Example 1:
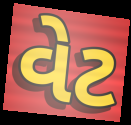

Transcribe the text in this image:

વેટ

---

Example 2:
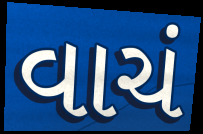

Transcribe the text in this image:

વાચં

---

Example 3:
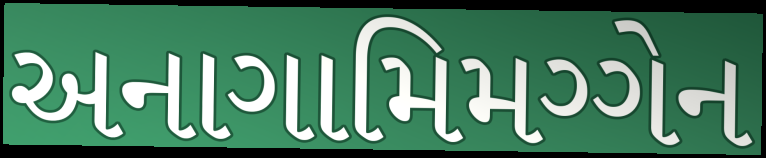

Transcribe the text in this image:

અનાગામિમગ્ગેન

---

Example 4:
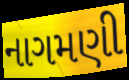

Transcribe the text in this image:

નાગમણી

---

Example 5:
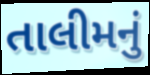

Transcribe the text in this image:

તાલીમનું